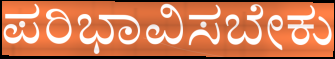
ಪರಿಭಾವಿಸಬೇಕು